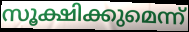
സൂക്ഷിക്കുമെന്ന്